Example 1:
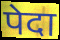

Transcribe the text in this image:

पेदा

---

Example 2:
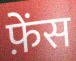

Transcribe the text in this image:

फ़ेंस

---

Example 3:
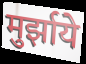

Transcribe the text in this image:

मुर्झाये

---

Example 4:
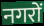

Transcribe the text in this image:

नगरों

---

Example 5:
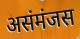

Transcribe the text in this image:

असंमंजस